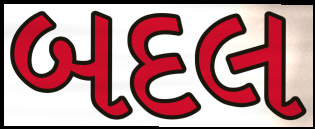
બદલ